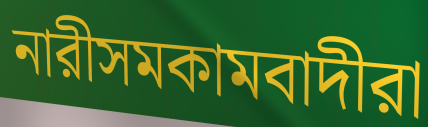
নারীসমকামবাদীরা